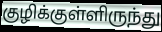
குழிக்குள்ளிருந்து